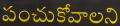
పంచుకోవాలని